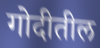
गोदीतील